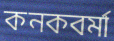
কনকবর্মা